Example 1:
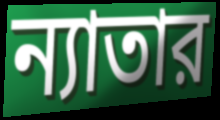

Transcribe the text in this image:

ন্যাতার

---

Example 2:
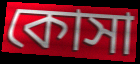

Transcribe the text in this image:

কোসা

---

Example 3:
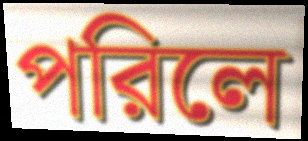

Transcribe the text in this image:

পরিলে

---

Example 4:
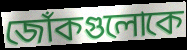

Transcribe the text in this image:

জোঁকগুলোকে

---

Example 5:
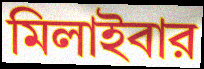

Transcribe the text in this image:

মিলাইবার